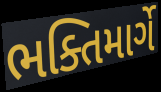
ભક્તિમાર્ગે